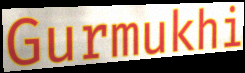
Gurmukhi